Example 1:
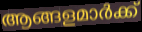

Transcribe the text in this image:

ആങ്ങളമാർക്ക്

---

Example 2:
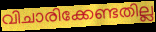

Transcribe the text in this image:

വിചാരിക്കേണ്ടതില്ല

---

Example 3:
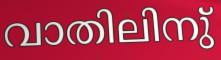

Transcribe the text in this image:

വാതിലിനു്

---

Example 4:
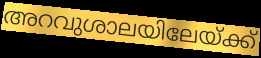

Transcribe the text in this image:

അറവുശാലയിലേയ്ക്ക്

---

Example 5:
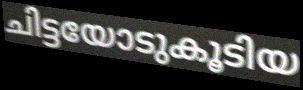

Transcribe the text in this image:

ചിട്ടയോടുകൂടിയ